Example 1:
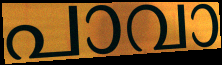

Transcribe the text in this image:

പാവാ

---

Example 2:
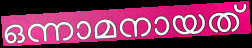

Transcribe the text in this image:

ഒന്നാമനായത്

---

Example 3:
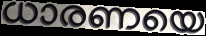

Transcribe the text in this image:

ധാരണയെ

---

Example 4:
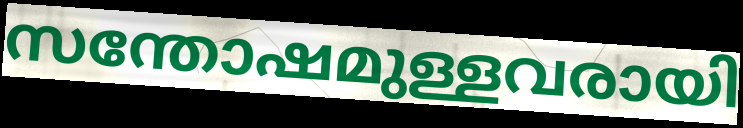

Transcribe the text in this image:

സന്തോഷമുള്ളവരായി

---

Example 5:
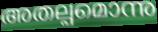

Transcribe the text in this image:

അതല്പമൊന്നു